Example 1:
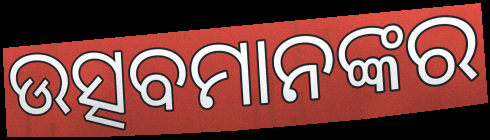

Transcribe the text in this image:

ଉତ୍ସବମାନଙ୍କର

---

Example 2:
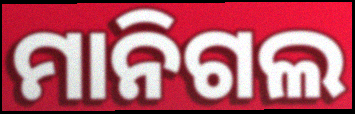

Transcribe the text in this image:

ମାନିଗଲ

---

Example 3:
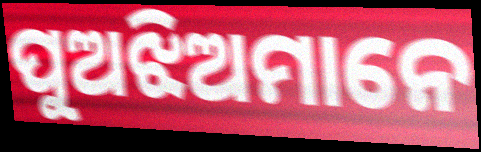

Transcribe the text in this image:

ପୁଅଝିଅମାନେ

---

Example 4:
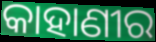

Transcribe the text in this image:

କାହାଣୀର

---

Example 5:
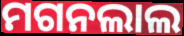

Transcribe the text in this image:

ମଗନଲାଲ